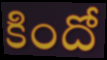
కిందో